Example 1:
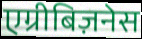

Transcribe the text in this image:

एग्रीबिज़नेस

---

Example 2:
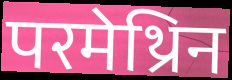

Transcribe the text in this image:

परमेथ्रिन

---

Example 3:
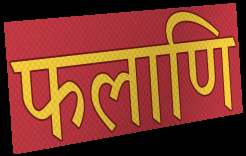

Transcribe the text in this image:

फलाणि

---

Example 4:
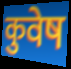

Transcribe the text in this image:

कुवेष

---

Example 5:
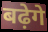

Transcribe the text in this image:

बढ़ेगे